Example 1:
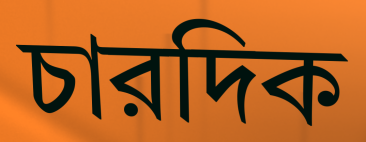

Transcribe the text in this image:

চারদিক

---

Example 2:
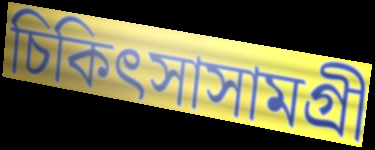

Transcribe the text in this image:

চিকিৎসাসামগ্রী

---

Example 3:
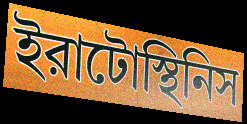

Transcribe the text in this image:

ইরাটোস্থিনিস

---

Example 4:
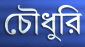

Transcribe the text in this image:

চৌধুরি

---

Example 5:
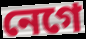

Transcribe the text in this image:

নেগে